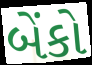
બેંકો